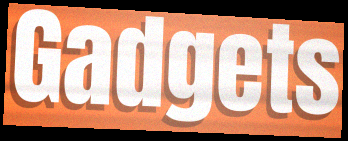
Gadgets